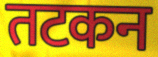
तटकन